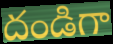
దండిగా